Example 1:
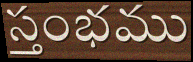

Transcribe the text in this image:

స్తంభము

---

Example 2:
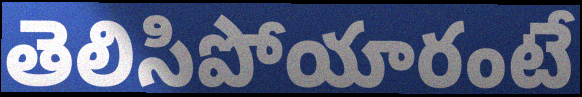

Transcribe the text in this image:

తెలిసిపోయారంటే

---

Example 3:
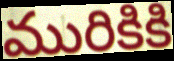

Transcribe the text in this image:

మురికికి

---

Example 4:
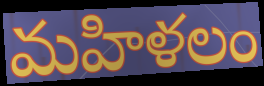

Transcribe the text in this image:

మహిళలం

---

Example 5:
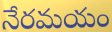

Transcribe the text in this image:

నేరమయం